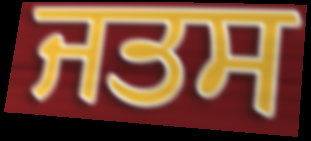
ਜਤਸ